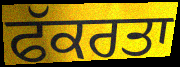
ਫੱਕਰਤਾ